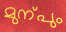
മുന്പും